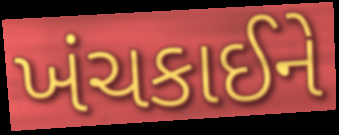
ખંચકાઈને